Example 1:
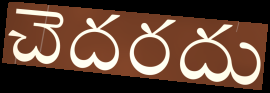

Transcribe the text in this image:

చెదరదు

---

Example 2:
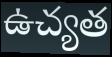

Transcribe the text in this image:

ఉచ్యత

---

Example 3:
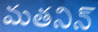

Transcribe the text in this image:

మతనిన్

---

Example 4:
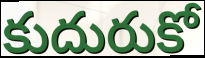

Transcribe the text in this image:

కుదురుకో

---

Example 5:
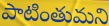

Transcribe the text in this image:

పాటింతుమని